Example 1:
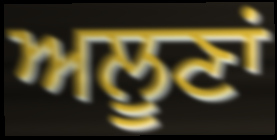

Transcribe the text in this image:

ਅਲੂਣਾਂ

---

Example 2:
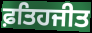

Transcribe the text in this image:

ਫ਼ਤਿਹਜੀਤ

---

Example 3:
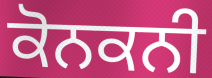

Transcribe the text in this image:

ਕੋਨਕਨੀ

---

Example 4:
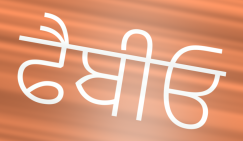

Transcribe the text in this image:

ਫੈਬੀਓ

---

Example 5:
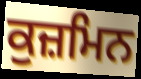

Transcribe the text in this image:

ਕੁਜ਼ਮਿਨ